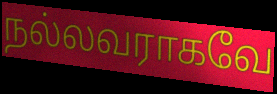
நல்லவராகவே